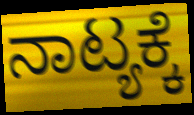
ನಾಟ್ಯಕ್ಕೆ